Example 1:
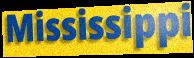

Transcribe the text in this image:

Mississippi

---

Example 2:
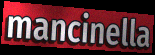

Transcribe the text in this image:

mancinella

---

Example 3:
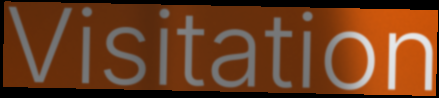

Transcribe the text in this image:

Visitation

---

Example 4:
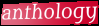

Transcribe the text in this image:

anthology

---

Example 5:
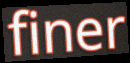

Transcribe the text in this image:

finer